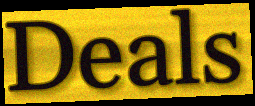
Deals